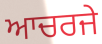
ਆਚਰਜੇ